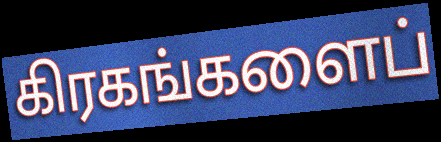
கிரகங்களைப்